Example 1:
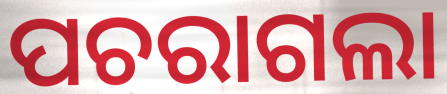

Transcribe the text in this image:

ପଚରାଗଲା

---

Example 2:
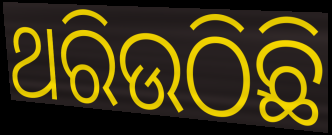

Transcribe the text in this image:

ଥରିଉଠିଛି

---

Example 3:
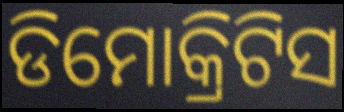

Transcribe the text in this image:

ଡିମୋକ୍ରିଟିସ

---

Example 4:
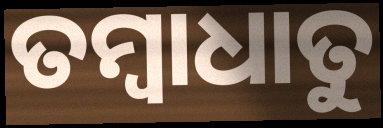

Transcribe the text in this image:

ତମ୍ବାଧାତୁ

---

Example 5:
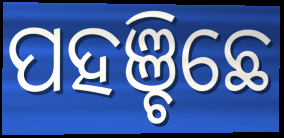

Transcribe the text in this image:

ପହଞ୍ଚିଛେ